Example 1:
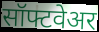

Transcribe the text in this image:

सॉफ्टवेअर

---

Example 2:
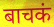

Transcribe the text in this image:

बाचकं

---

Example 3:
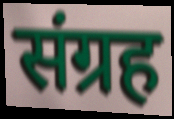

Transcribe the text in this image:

संग्रह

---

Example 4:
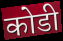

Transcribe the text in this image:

कोडी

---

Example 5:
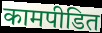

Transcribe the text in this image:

कामपीडित